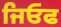
ਜਿਓਫ